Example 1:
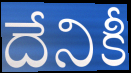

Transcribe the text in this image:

దేనికీ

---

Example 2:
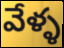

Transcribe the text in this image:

వేళ్ళ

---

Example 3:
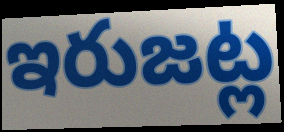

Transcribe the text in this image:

ఇరుజట్ల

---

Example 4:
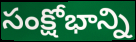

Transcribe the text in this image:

సంక్షోభాన్ని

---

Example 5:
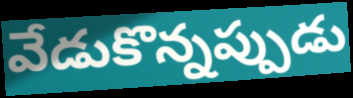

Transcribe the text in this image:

వేడుకొన్నప్పుడు